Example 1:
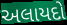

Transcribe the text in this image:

અલાયદો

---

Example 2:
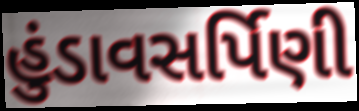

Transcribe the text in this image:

હુંડાવસર્પિણી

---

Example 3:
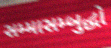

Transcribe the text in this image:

સમ્માસમ્બુદ્ધો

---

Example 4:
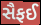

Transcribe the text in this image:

સૈફઈ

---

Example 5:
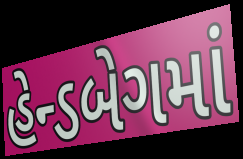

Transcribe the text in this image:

હેન્ડબેગમાં